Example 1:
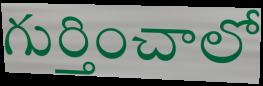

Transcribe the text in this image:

గుర్తించాలో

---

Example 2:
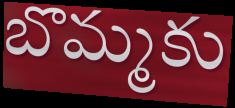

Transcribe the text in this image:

బొమ్మకు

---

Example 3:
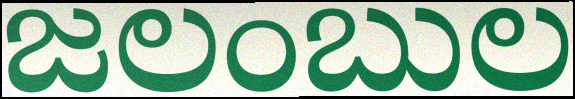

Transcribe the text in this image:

జలంబుల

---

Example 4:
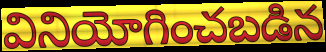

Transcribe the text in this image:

వినియోగించబడిన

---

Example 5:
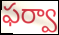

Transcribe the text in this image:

ఫర్వా